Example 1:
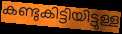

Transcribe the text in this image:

കണ്ടുകിട്ടിയിട്ടുള്ള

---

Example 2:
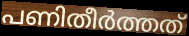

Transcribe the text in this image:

പണിതീർത്തത്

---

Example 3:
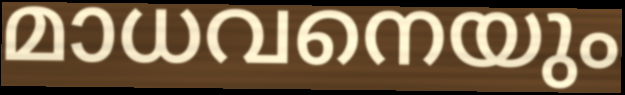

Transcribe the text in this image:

മാധവനെയും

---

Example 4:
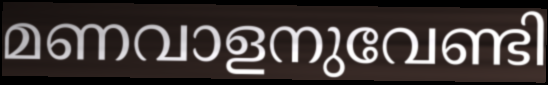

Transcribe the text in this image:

മണവാളനുവേണ്ടി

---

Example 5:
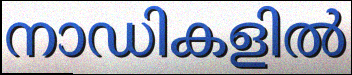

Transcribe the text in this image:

നാഡികളിൽ